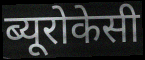
ब्यूरोकेसी